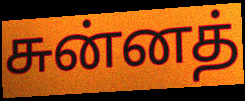
சுன்னத்